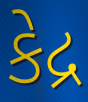
કેદ્ર